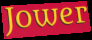
Jower